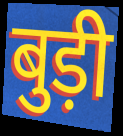
बुड़ी